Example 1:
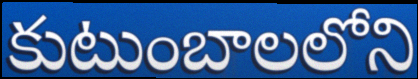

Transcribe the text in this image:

కుటుంబాలలోని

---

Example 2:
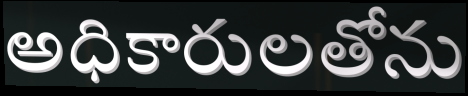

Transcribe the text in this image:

అధికారులతోను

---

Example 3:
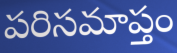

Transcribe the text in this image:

పరిసమాప్తం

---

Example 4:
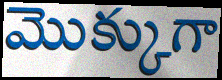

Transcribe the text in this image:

మొక్కుగా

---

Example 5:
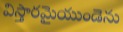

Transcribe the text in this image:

విస్తారమైయుండెను